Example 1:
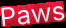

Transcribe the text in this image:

Paws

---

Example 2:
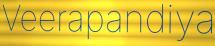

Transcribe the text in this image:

Veerapandiya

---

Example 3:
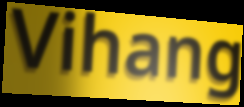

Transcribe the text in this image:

Vihang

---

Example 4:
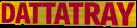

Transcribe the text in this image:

DATTATRAY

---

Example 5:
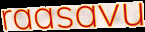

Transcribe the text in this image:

raasavu